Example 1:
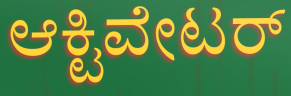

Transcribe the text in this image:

ಆಕ್ಟಿವೇಟರ್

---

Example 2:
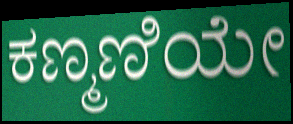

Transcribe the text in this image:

ಕಣ್ಮಣಿಯೇ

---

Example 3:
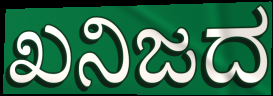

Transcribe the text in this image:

ಖನಿಜದ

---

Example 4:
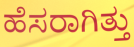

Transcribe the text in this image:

ಹೆಸರಾಗಿತ್ತು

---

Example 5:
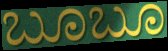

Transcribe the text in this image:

ಬೂಬೂ